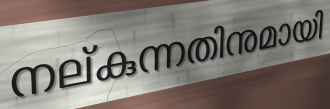
നല്‌കുന്നതിനുമായി